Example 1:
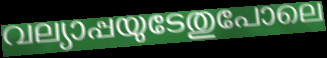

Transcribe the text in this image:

വല്യാപ്പയുടേതുപോലെ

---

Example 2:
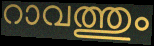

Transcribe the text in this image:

റാവത്തും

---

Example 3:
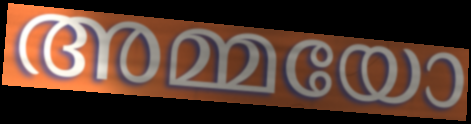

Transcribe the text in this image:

അമ്മയോ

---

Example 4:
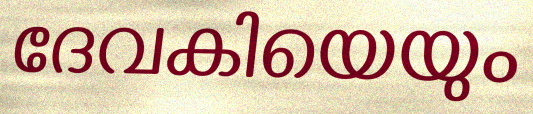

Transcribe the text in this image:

ദേവകിയെയും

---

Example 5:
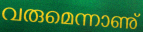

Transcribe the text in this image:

വരുമെന്നാണു്